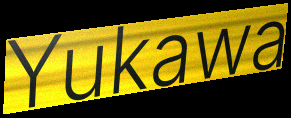
Yukawa